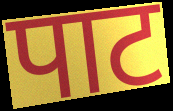
पाट